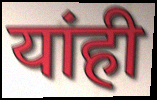
यांही